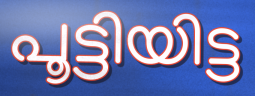
പൂട്ടിയിട്ട